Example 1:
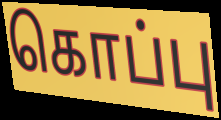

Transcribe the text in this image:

கொப்பு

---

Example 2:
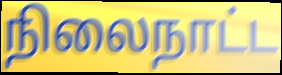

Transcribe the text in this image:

நிலைநாட்ட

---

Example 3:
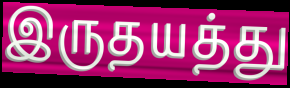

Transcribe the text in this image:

இருதயத்து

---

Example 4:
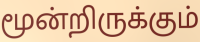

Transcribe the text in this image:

மூன்றிருக்கும்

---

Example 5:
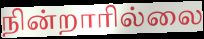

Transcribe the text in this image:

நின்றாரில்லை